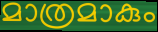
മാത്രമാകും